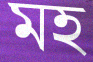
মহ